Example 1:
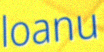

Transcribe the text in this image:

loanu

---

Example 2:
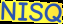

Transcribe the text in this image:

NISQ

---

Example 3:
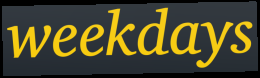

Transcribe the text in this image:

weekdays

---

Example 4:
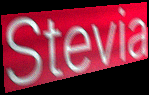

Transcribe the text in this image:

Stevia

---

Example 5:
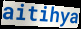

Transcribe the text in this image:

aitihya